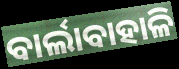
ବାର୍ଲାବାହାଳି